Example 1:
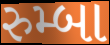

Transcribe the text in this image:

રુમ્બા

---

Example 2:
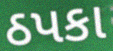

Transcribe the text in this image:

ઠપકા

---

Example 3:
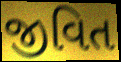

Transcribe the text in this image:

જીવિત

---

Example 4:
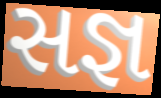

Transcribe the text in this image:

સજ્ઞ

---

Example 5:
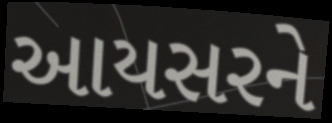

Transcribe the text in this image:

આયસરને